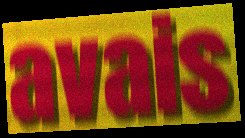
avais